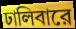
ঢালিবারে